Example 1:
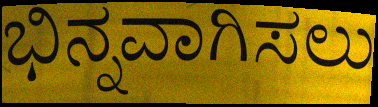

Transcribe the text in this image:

ಭಿನ್ನವಾಗಿಸಲು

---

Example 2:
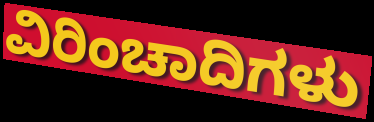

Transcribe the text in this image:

ವಿರಿಂಚಾದಿಗಳು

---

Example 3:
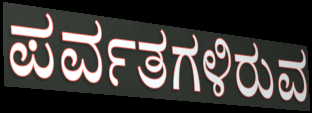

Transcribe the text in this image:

ಪರ್ವತಗಳಿರುವ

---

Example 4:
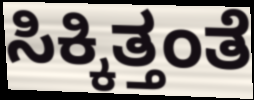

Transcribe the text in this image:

ಸಿಕ್ಕಿತ್ತಂತೆ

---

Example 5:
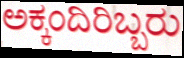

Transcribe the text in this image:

ಅಕ್ಕಂದಿರಿಬ್ಬರು